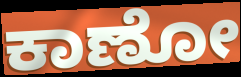
ಕಾಣೋ